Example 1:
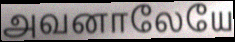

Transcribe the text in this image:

அவனாலேயே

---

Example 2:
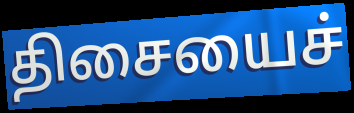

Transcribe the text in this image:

திசையைச்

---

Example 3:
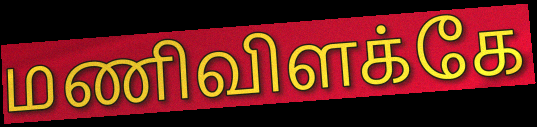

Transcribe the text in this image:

மணிவிளக்கே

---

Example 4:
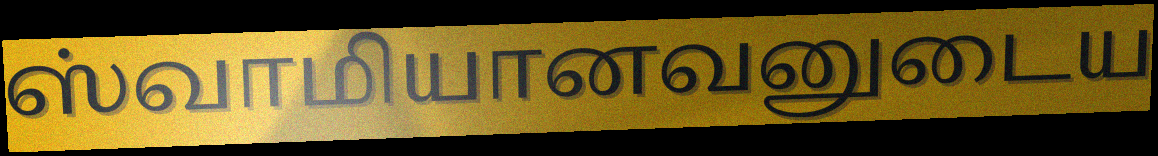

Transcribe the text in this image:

ஸ்வாமியானவனுடைய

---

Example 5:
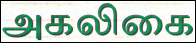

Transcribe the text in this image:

அகலிகை